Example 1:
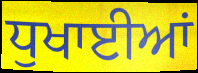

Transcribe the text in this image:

ਧੁਖਾਈਆਂ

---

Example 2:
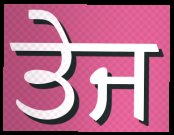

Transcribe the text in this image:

ਤੇਜ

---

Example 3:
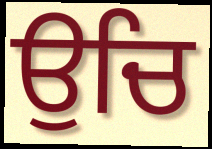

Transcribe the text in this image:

ਉਚਿ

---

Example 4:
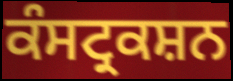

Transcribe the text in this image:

ਕੰਸਟ੍ਰਕਸ਼ਨ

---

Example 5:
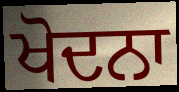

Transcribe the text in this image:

ਖੋਦਨਾ